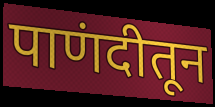
पाणंदीतून